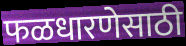
फळधारणेसाठी